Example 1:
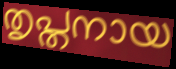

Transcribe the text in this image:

തൃപ്തനായ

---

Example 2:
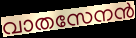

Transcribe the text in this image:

വാതസേനൻ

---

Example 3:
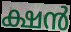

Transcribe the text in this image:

ക്ഷൻ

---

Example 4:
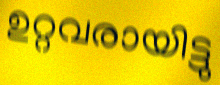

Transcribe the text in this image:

ഉറ്റവരായിട്ടു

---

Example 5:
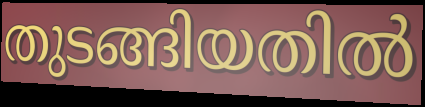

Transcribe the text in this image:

തുടങ്ങിയതിൽ